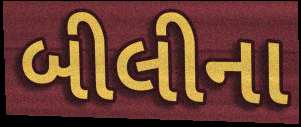
બીલીના